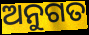
ଅନୁଗତ